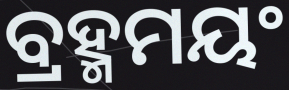
ବ୍ରହ୍ମମୟଂ